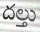
దల్తు